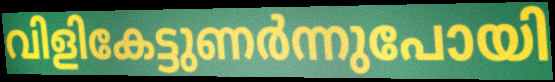
വിളികേട്ടുണർന്നുപോയി